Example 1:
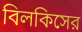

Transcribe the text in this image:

বিলকিসের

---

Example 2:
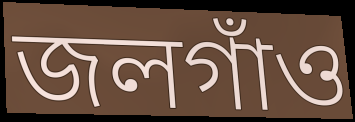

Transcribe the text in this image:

জলগাঁও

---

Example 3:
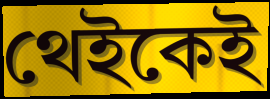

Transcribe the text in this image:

থেইকেই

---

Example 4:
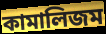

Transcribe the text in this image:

কামালিজম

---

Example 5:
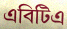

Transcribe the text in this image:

এবিটিএ